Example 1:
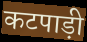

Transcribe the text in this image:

कटपाड़ी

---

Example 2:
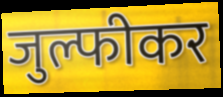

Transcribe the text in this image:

जुल्फीकर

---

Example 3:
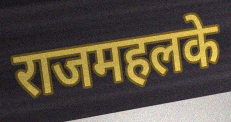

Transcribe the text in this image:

राजमहलके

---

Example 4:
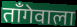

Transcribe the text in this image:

ताँगेवाला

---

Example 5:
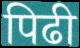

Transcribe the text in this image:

पिढी